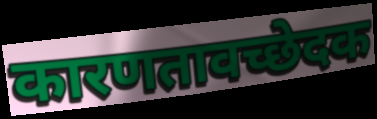
कारणतावच्छेदक